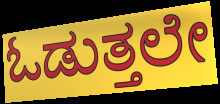
ಓಡುತ್ತಲೇ